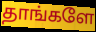
தாங்களே